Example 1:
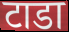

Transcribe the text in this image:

टाडा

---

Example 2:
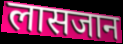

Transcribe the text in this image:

लासजान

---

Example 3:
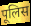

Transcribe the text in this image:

पूलिस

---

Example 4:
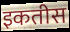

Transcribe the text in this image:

इकतीस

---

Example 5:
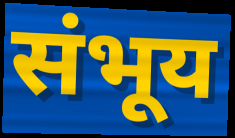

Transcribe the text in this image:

संभूय